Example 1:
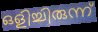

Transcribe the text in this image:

ഒളിച്ചിരുന്ന്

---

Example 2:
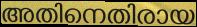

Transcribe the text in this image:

അതിനെതിരായ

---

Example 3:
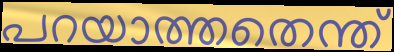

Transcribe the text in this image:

പറയാത്തതെന്ത്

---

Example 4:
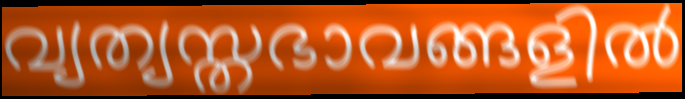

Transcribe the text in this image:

വ്യത്യസ്തഭാവങ്ങളിൽ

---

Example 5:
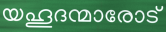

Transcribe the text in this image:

യഹൂദന്മാരോട്